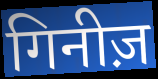
गिनीज़